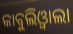
କାବୁଲିଓ୍ୱାଲା